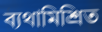
ব্যথামিশ্রিত